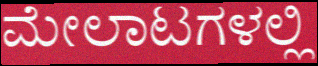
ಮೇಲಾಟಗಳಲ್ಲಿ